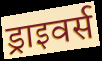
ड्राइवर्स